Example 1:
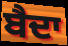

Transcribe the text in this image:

ਬੈਦਾ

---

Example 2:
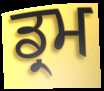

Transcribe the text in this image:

ਡ੍ਰਮ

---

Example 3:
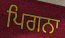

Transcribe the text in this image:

ਪਿਗਨਾ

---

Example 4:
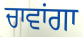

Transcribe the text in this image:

ਚਾਵਾਂਗਾ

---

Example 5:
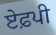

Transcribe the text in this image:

ਏਫ਼ਪੀ